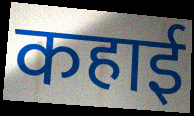
कहाई